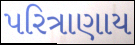
પરિત્રાણાય